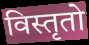
विस्तृतो